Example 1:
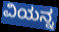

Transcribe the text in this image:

ವಿಯನ್ನ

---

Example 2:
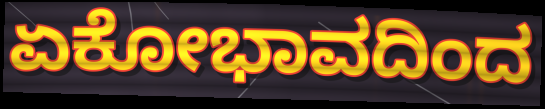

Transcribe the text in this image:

ಏಕೋಭಾವದಿಂದ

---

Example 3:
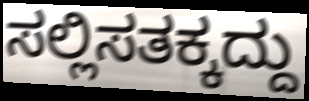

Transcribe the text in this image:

ಸಲ್ಲಿಸತಕ್ಕದ್ದು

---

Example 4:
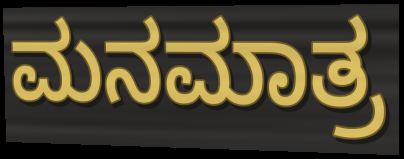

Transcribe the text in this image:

ಮನಮಾತ್ರ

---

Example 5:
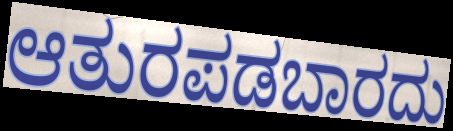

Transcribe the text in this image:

ಆತುರಪಡಬಾರದು